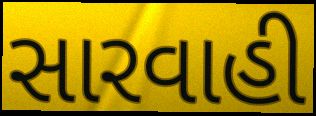
સારવાહી